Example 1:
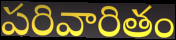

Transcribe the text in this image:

పరివారితం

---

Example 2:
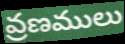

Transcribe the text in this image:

వ్రణములు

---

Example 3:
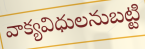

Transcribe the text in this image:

వాక్యవిధులనుబట్టి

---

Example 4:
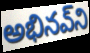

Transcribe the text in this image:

అభినవ్‌ని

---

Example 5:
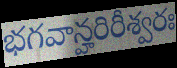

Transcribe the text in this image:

భగవాన్హరిరీశ్వరః